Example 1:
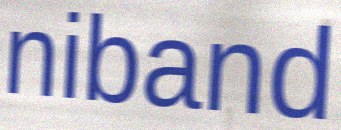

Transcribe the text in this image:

niband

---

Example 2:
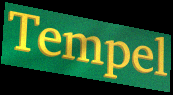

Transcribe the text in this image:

Tempel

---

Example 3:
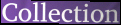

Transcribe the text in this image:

Collection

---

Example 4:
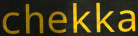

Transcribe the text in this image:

chekka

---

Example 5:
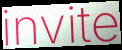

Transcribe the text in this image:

invite